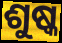
ଶୁଷ୍କ